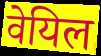
वेयिल